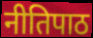
नीतिपाठ